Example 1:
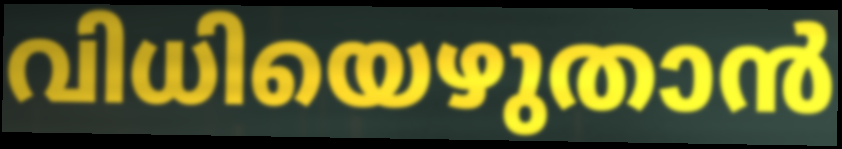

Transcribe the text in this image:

വിധിയെഴുതാൻ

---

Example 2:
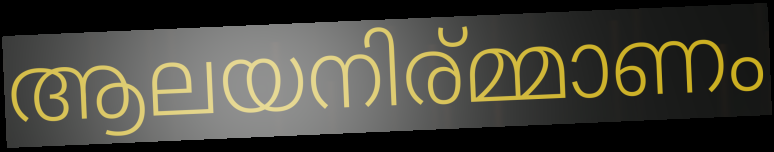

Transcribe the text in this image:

ആലയനിര്മ്മാണം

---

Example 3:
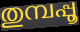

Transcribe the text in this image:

തുമ്പപ്പൂ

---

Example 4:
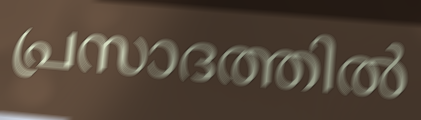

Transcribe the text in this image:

പ്രസാദത്തിൽ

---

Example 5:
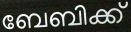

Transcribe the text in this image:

ബേബിക്ക്